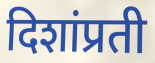
दिशांप्रती